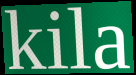
kila